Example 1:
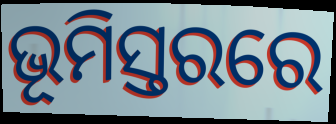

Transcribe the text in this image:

ଭୂମିସ୍ତରରେ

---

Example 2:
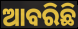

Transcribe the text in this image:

ଆବରିଛି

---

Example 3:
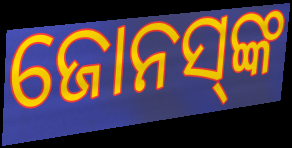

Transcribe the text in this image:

ଜୋନସ୍‌ଙ୍କ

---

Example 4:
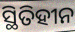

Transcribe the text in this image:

ସ୍ଥିତିହୀନ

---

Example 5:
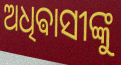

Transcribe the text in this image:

ଅଧିଵାସୀଙ୍କୁ